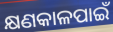
କ୍ଷଣକାଳପାଇଁ